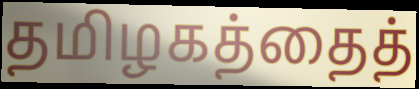
தமிழகத்தைத்